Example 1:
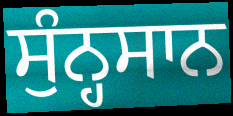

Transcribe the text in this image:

ਸੁੰਨ੍ਹਸਾਨ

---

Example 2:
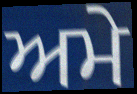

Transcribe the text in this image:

ਅਮੇ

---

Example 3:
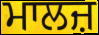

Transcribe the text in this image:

ਮਾਲਜ਼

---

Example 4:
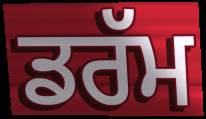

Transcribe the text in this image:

ਡਰੱਮ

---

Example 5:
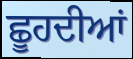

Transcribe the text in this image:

ਛੂਹਦੀਆਂ